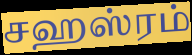
சஹஸ்ரம்